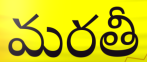
మరతీ